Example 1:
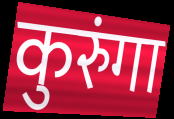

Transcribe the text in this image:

कुरुंगा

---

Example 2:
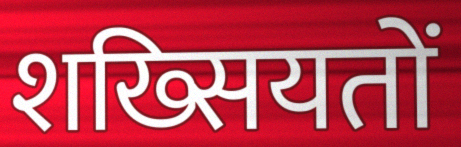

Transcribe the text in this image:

शख्सियतों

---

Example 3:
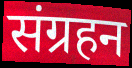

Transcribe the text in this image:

संग्रहन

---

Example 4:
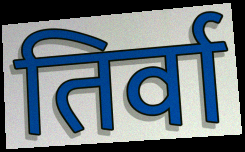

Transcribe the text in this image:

तिर्वा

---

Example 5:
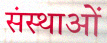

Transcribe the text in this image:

संस्‍थाओं